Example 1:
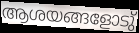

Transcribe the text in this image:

ആശയങ്ങളോടു്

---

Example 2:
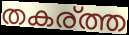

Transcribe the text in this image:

തകര്ത്ത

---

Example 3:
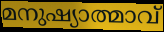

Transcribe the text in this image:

മനുഷ്യാത്മാവ്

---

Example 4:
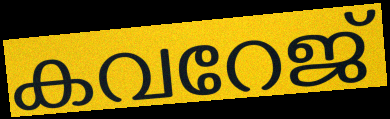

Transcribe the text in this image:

കവറേജ്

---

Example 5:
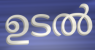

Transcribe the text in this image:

ഉടൽ